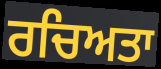
ਰਚਿਅਤਾ